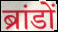
ब्रांडों